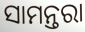
ସାମନ୍ତରା